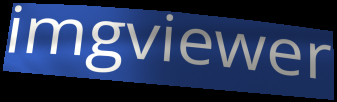
imgviewer